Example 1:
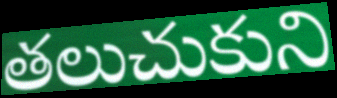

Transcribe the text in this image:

తలుచుకుని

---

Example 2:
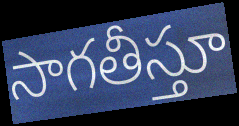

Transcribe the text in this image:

సాగతీస్తూ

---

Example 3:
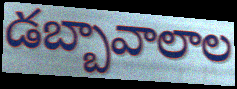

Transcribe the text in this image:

డబ్బావాలాల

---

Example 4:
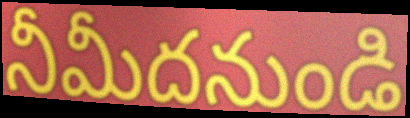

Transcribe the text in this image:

నీమీదనుండి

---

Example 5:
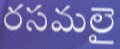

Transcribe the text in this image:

రసమలై